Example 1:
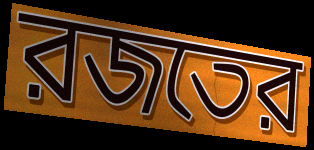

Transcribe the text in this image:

রজতের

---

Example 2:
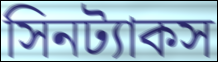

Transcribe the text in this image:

সিনট্যাকস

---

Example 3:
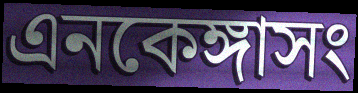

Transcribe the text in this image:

এনকেঙ্গাসং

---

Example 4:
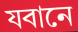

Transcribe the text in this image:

যবানে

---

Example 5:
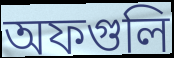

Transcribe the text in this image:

অফগুলি